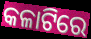
କଳାଟିରେ